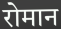
रोमान